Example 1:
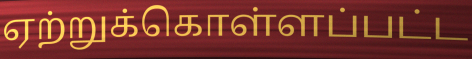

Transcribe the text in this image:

ஏற்றுக்கொள்ளப்பட்ட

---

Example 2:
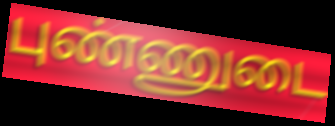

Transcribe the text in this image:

புண்ணுடை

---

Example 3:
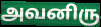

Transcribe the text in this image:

அவனிரு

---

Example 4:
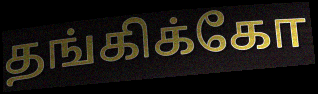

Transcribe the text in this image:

தங்கிக்கோ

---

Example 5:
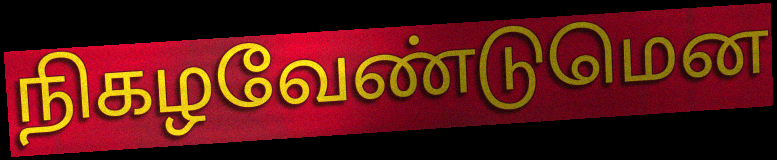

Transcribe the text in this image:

நிகழவேண்டுமென